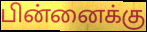
பின்னைக்கு